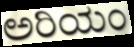
ಅರಿಯಂ